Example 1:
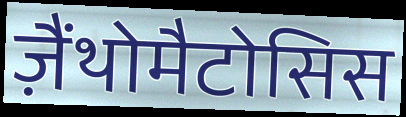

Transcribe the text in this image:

ज़ैंथोमैटोसिस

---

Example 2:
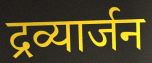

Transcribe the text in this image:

द्रव्यार्जन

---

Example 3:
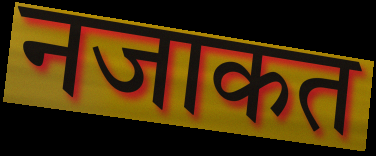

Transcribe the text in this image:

नजाकत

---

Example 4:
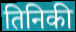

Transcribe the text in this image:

तिनिकी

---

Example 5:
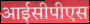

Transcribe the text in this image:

आईसीपीएस